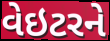
વેઇટરને